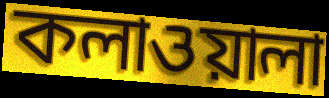
কলাওয়ালা